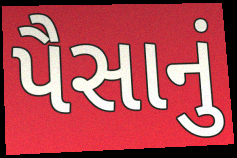
પૈસાનું